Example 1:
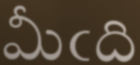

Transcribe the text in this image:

మీఁది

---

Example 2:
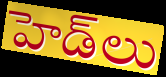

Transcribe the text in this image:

హెడ్‌లు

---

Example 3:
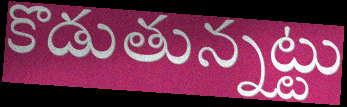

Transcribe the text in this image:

కొడుతున్నట్టు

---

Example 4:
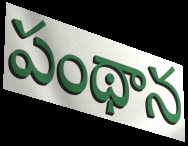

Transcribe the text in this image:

పంథాన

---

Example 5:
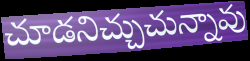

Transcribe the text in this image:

చూడనిచ్చుచున్నావు